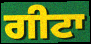
ਗੀਟਾ